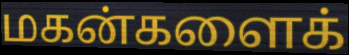
மகன்களைக்